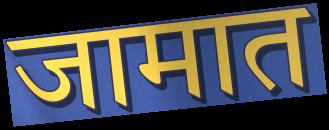
जामात